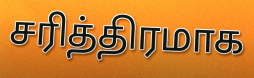
சரித்திரமாக